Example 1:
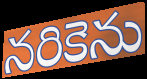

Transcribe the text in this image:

నరికెను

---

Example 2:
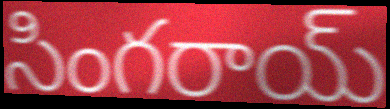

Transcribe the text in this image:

సింగరాయ్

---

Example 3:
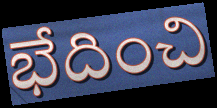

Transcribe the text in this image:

భేదించి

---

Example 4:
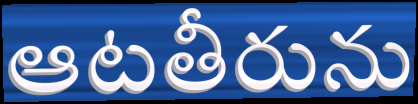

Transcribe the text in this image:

ఆటతీరును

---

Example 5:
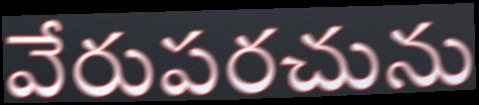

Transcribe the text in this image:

వేరుపరచును